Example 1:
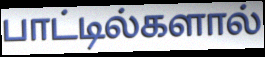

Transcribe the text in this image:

பாட்டில்களால்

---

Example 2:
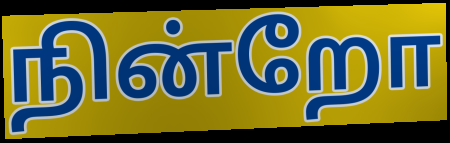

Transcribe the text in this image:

நின்றோ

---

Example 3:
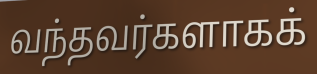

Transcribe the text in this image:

வந்தவர்களாகக்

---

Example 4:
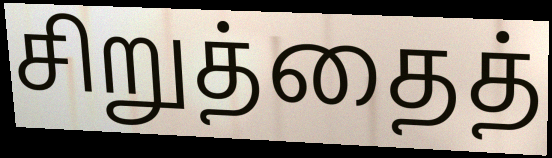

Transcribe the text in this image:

சிறுத்தைத்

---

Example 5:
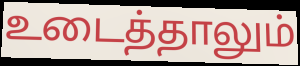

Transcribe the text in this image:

உடைத்தாலும்